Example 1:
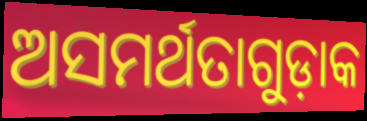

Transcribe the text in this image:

ଅସମର୍ଥତାଗୁଡ଼ାକ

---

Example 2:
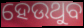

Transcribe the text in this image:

ହେଉଥୁବ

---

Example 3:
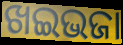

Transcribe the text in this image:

ଖଇଭଜା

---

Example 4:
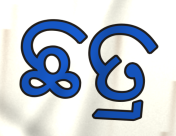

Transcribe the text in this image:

ଛତ୍ର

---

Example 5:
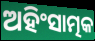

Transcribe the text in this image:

ଅହିଂସାତ୍ମକ